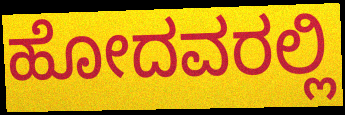
ಹೋದವರಲ್ಲಿ